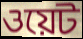
ওয়েট